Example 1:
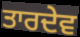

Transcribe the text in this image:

ਤਾਰਦੇਵ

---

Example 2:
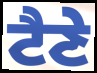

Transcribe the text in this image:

ਟੈਣੇ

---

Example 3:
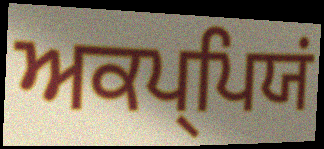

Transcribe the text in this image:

ਅਕਪ੍ਪਿਯਂ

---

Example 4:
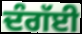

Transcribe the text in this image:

ਦੰਗੱਈ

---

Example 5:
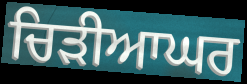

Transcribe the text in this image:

ਚਿੜੀਆਘਰ